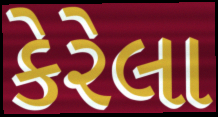
કેરેલા